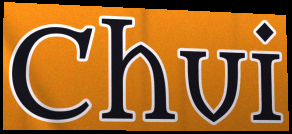
Chui